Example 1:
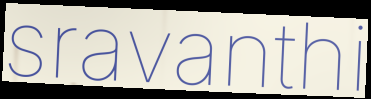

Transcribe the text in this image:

sravanthi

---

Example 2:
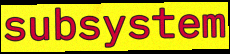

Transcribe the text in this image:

subsystem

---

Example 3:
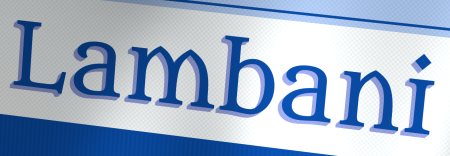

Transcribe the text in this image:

Lambani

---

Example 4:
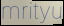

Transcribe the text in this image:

mrityu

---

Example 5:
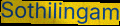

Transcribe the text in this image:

Sothilingam